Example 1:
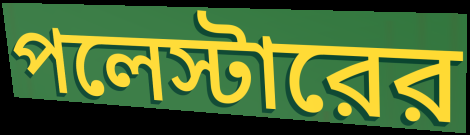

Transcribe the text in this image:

পলেস্টারের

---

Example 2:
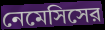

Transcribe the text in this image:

নেমেসিসের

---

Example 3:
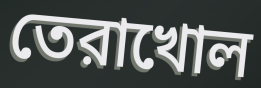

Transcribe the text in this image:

তেরাখোল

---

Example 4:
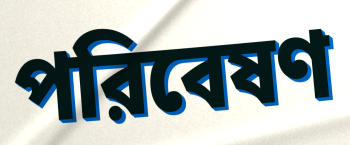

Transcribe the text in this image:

পরিবেষণ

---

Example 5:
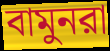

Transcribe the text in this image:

বামুনরা